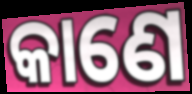
କାଣେ